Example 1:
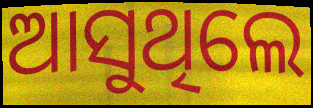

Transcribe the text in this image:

ଆସୁଥିଲେ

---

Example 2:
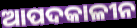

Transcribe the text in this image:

ଆପଦକାଳୀନ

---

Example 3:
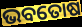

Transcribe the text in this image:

ଭବତୋଷ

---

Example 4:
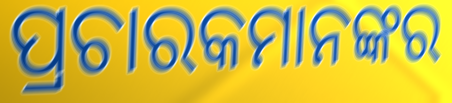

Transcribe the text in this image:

ପ୍ରଚାରକମାନଙ୍କର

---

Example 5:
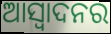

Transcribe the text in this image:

ଆସ୍ବାଦନର